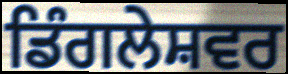
ਡਿੰਗਲੇਸ਼ਵਰ